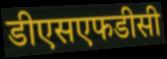
डीएसएफडीसी